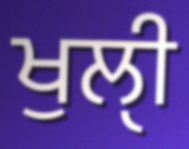
ਖੁਲੀੑ